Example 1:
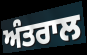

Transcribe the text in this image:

ਅੰਤਰਾਲ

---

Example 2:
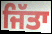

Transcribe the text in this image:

ਜਿੱਤਾ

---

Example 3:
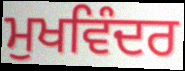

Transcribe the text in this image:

ਮੁਖਵਿੰਦਰ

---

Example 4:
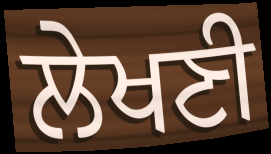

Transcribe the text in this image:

ਲੇਖਣੀ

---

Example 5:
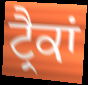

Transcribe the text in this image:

ਟ੍ਰੈਕਾਂ